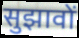
सुझावों